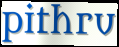
pithru